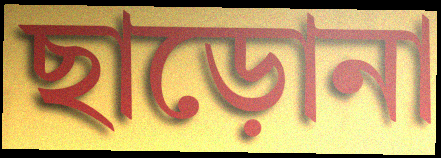
ছাড়োনা